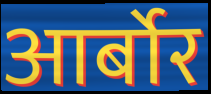
आर्बोर